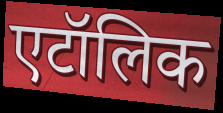
एटॉलिक